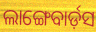
ଲାଙ୍ଗେବାର୍ଡ଼ସ